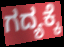
ಗದ್ಯಕ್ಕೆ